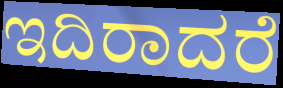
ಇದಿರಾದರೆ